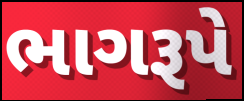
ભાગરૂપે